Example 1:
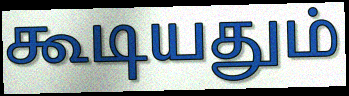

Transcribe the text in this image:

கூடியதும்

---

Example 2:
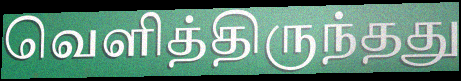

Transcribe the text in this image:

வெளித்திருந்தது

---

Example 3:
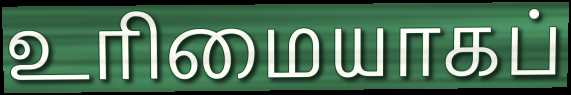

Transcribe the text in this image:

உரிமையாகப்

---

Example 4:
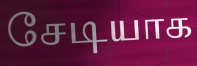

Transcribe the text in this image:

சேடியாக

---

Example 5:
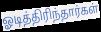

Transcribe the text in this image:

ஓடித்திரிந்தார்கள்